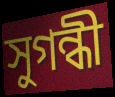
সুগন্ধী